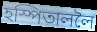
হস্পিতাললৈ